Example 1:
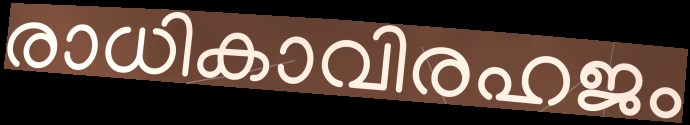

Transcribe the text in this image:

രാധികാവിരഹജം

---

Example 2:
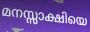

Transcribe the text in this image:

മനസ്സാക്ഷിയെ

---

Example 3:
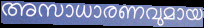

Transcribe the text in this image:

അസാധാരണവുമായ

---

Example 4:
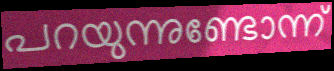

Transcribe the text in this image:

പറയുന്നുണ്ടോന്ന്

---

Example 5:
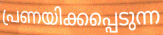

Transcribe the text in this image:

പ്രണയിക്കപ്പെടുന്ന